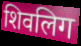
शिवलिग